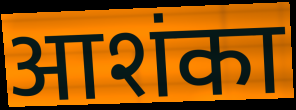
आशंका